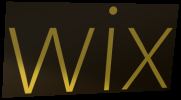
wix